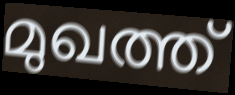
മുഖത്ത്